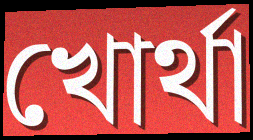
খোৰ্থা